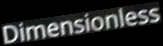
Dimensionless